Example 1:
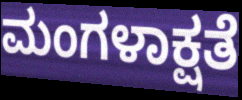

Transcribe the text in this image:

ಮಂಗಳಾಕ್ಷತೆ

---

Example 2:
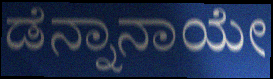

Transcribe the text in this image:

ಡೆನ್ನಾನಾಯೇ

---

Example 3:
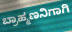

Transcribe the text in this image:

ಬ್ರಾಹ್ಮಣನಿಗಾಗಿ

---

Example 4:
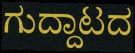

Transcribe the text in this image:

ಗುದ್ದಾಟದ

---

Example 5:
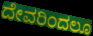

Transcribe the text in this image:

ದೇವರಿಂದಲೂ